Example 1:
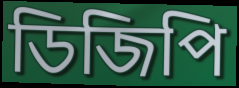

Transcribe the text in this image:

ডিজিপি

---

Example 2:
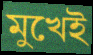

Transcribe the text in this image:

মুখেই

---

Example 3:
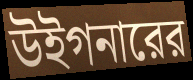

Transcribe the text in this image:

উইগনারের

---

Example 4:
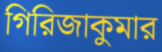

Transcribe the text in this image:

গিরিজাকুমার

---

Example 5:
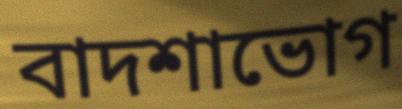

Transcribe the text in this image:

বাদশাভোগ